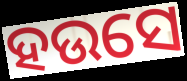
ହଉସେ